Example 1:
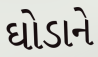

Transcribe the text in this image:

ઘોડાને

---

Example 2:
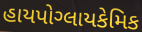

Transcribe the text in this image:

હાયપોગ્લાયકેમિક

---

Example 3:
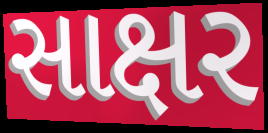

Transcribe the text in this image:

સાક્ષર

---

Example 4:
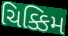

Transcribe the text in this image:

ચિક્કિમ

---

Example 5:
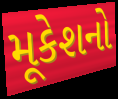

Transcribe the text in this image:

મૂકેશનો